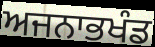
ਅਜਨਾਭਖੰਡ